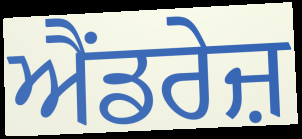
ਐਂਡਰੇਜ਼